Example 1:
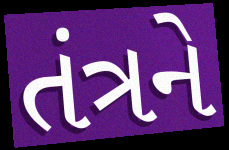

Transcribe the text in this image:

તંત્રને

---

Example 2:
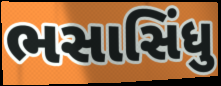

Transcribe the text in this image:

ભસાસિંધુ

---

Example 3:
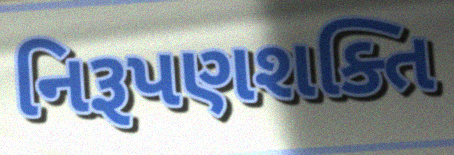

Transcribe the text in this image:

નિરૂપણશક્તિ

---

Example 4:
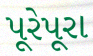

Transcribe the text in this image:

પૂરેપૂરા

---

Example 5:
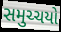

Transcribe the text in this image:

સમુચ્ચયો